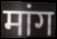
मांग